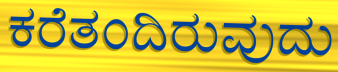
ಕರೆತಂದಿರುವುದು